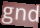
gnd